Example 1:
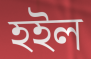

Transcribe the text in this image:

হইল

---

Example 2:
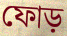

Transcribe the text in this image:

ফোড়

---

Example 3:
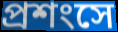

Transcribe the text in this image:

প্রশংসে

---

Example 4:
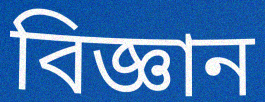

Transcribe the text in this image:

বিজ্ঞান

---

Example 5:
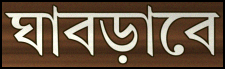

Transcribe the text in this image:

ঘাবড়াবে